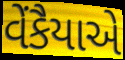
વેંકૈયાએ